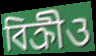
বিক্ৰীও